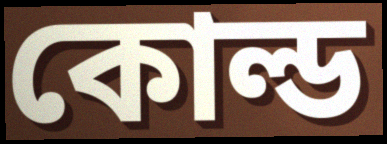
কোল্ড